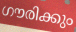
ഗൗരിക്കും